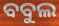
ବବୁଲ